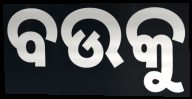
ବଉକୁ